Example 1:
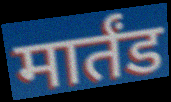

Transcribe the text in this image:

मार्तंड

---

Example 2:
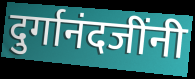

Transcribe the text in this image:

दुर्गानंदजींनी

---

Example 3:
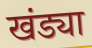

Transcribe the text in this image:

खंड्या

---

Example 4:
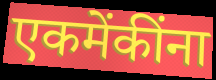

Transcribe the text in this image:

एकमेंकींना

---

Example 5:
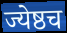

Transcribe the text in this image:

ज्येष्ठच